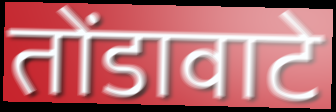
तोंडावाटे